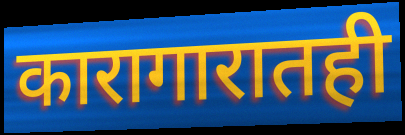
कारागारातही